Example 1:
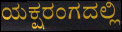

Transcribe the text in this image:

ಯಕ್ಷರಂಗದಲ್ಲಿ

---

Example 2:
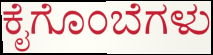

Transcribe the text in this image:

ಕೈಗೊಂಬೆಗಳು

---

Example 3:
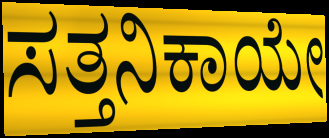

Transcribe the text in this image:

ಸತ್ತನಿಕಾಯೇ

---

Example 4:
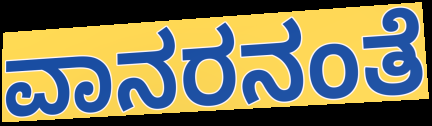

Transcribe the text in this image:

ವಾನರನಂತೆ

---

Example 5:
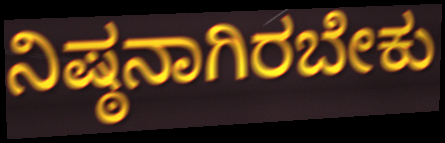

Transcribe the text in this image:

ನಿಷ್ಠನಾಗಿರಬೇಕು